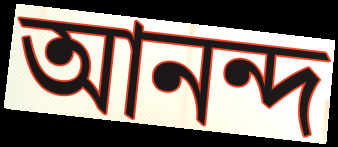
আনন্দ